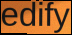
edify